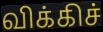
விக்கிச்